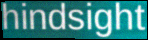
hindsight